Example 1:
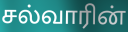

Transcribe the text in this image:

சல்வாரின்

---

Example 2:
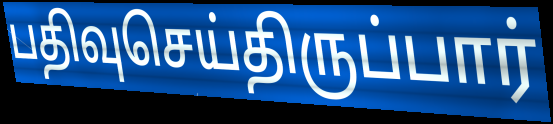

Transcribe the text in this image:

பதிவுசெய்திருப்பார்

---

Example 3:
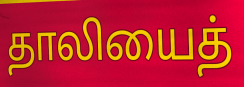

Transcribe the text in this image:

தாலியைத்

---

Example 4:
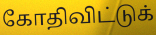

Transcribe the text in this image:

கோதிவிட்டுக்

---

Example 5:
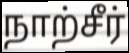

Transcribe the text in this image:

நாற்சீர்